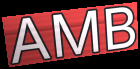
AMB